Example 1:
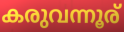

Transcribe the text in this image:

കരുവന്നൂര്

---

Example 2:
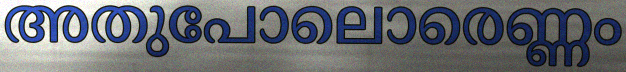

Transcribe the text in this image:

അതുപോലൊരെണ്ണം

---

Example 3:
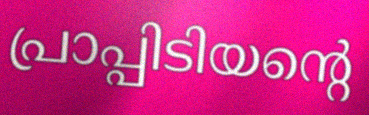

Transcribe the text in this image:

പ്രാപ്പിടിയന്റെ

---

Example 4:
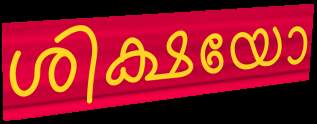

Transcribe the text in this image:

ശിക്ഷയോ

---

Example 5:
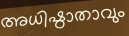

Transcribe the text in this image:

അധിഷ്ഠാതാവും